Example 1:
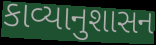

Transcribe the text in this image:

કાવ્યાનુશાસન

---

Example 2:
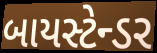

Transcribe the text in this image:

બાયસ્ટેન્ડર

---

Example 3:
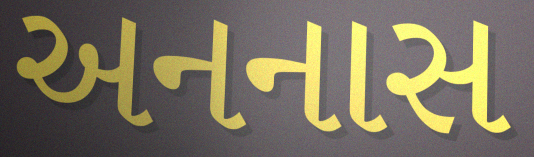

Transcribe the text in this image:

અનનાસ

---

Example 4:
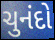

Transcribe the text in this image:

ચુનંદો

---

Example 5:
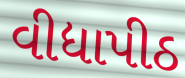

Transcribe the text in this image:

વીદ્યાપીઠ